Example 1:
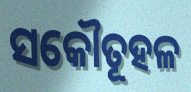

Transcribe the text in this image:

ସକୌତୂହଳ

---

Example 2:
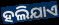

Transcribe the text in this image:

ହଲିଯାଏ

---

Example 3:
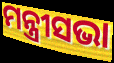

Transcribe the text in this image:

ମନ୍ତ୍ରୀସଭା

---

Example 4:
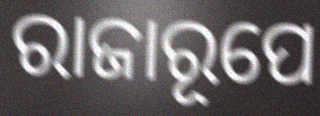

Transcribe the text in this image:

ରାଜାରୂପେ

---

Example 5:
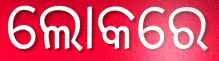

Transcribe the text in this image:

ଲୋକରେ